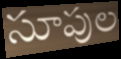
సూపుల